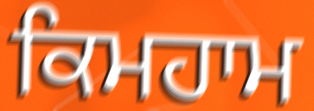
ਕਿਮਹਾਮ